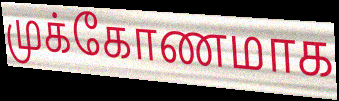
முக்கோணமாக